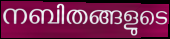
നബിതങ്ങളുടെ